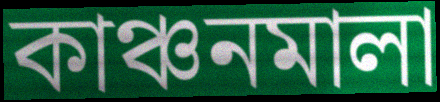
কাঞ্চনমালা